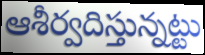
ఆశీర్వదిస్తున్నట్టు